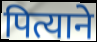
पित्याने